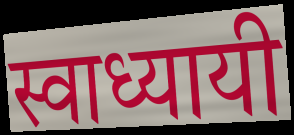
स्वाध्यायी